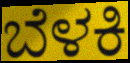
ಬೆಳಕಿ